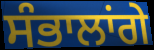
ਸੰਭਾਲਾਂਗੇ